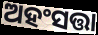
ଅହଂସତ୍ତା